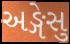
અઙ્ગેસુ